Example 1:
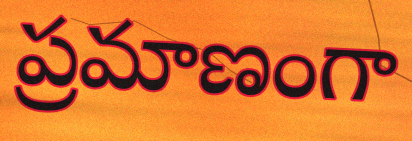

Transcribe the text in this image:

ప్రమాణంగా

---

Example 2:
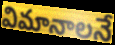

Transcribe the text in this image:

విమానాలనే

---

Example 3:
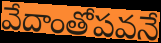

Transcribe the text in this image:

వేదాంతోపవనే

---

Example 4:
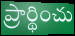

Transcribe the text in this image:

ప్రార్థించు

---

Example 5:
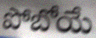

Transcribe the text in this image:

పోబోయే